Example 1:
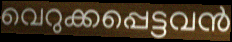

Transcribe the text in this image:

വെറുക്കപ്പെട്ടവൻ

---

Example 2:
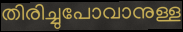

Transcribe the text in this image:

തിരിച്ചുപോവാനുള്ള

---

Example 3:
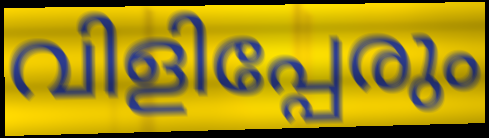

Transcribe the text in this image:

വിളിപ്പേരും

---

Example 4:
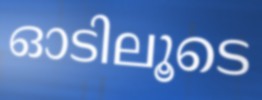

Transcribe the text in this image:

ഓടിലൂടെ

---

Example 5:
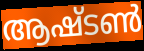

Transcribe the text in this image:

ആഷ്ടൺ